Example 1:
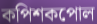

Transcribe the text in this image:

কপিশকপোল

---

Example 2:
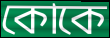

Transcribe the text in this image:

কোকে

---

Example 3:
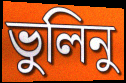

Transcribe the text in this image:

ভুলিনু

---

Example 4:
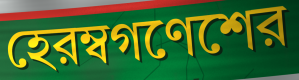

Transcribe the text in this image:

হেরম্বগণেশের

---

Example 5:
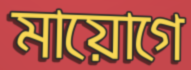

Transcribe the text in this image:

মায়োগে